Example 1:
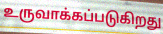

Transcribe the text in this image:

உருவாக்கப்படுகிறது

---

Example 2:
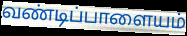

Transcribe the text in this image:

வண்டிப்பாளையம்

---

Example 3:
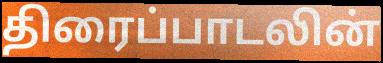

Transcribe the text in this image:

திரைப்பாடலின்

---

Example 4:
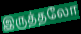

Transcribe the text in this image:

இருத்தலோ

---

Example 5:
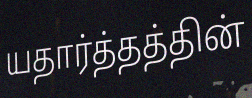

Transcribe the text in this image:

யதார்த்தத்தின்